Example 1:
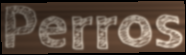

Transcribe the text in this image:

Perros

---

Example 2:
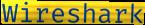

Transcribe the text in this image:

Wireshark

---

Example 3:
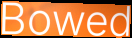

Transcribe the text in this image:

Bowed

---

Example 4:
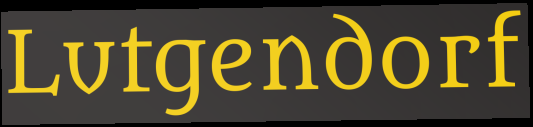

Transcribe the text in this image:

Lutgendorf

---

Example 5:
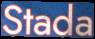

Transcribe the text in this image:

Stada